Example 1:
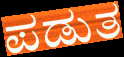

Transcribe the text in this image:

ಪಡುತ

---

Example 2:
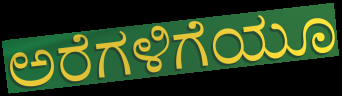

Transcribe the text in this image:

ಅರೆಗಳಿಗೆಯೂ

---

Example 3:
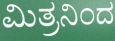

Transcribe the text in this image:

ಮಿತ್ರನಿಂದ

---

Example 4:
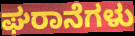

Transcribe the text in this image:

ಘರಾನೆಗಳು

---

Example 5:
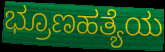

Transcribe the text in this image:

ಭ್ರೂಣಹತ್ಯೆಯ